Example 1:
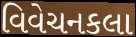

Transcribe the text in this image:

વિવેચનકલા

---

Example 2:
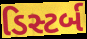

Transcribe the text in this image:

ડિસ્ટર્બ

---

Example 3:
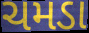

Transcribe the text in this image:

ચમડા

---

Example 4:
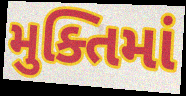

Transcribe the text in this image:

મુક્તિમાં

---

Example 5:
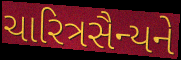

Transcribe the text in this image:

ચારિત્રસૈન્યને